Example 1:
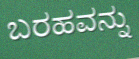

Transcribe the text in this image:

ಬರಹವನ್ನು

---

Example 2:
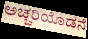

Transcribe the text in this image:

ಅಚ್ಚರಿಯೊಡನೆ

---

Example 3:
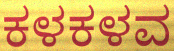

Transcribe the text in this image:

ಕಳಕಳವ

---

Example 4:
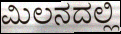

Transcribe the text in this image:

ಮಿಲನದಲ್ಲಿ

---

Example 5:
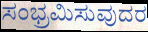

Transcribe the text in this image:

ಸಂಭ್ರಮಿಸುವುದರ